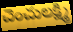
చెంచులక్ష్మి